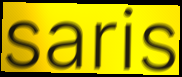
saris